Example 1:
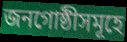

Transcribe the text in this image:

জনগোষ্ঠীসমূহে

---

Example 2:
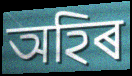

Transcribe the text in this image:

অহিৰ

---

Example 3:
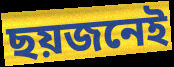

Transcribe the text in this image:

ছয়জনেই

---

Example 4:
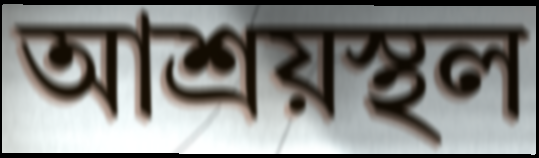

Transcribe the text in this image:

আশ্ৰয়স্থল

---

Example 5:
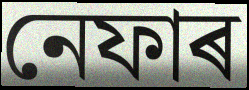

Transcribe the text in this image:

নেফাৰ